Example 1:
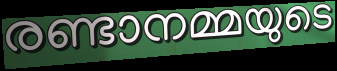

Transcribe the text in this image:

രണ്ടാനമ്മയുടെ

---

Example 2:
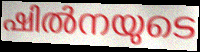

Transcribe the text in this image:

ഷിൽനയുടെ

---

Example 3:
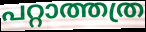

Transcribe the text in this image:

പറ്റാത്തത്ര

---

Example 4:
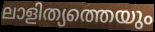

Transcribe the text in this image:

ലാളിത്യത്തെയും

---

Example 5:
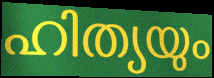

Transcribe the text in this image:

ഹിത്യയും